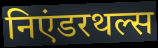
निएंडरथल्स